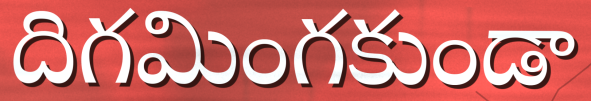
దిగమింగకుండా